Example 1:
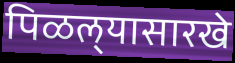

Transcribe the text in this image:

पिळल्यासारखे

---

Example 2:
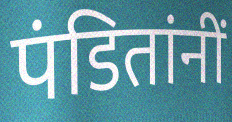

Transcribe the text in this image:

पंडितांनीं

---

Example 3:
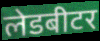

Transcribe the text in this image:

लेडबीटर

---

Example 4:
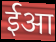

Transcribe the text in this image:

ईआ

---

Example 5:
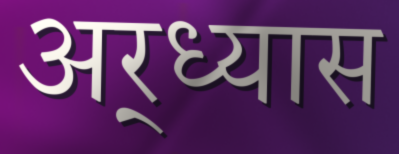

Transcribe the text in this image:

अर्ध्यास